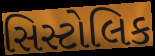
સિસ્ટોલિક